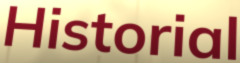
Historial